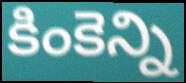
కింకెన్ని